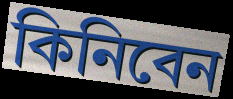
কিনিবেন